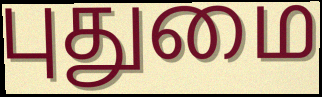
புதுமை